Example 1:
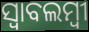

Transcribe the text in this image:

ସ୍ଵାବଲମ୍ଵୀ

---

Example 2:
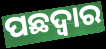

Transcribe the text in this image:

ପଛଦ୍ୱାର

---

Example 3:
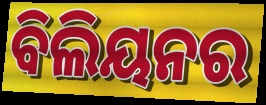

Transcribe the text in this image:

ବିଲିୟନର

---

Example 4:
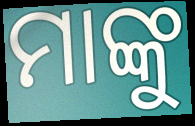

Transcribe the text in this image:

ମାଙ୍କୁ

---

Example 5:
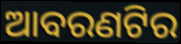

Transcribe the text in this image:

ଆବରଣଟିର